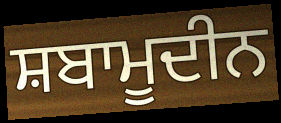
ਸ਼ਬਾਮੂਦੀਨ